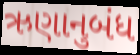
ઋણાનુબંધ